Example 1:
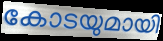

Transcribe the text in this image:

കോടയുമായി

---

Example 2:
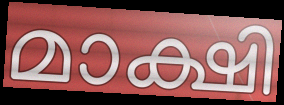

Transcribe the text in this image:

മാക്ഷി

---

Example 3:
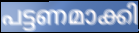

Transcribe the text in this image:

പട്ടണമാക്കി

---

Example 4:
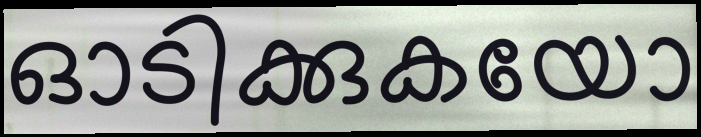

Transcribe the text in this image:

ഓടിക്കുകയോ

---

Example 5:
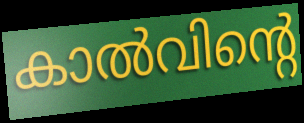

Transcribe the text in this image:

കാൽവിന്റെ